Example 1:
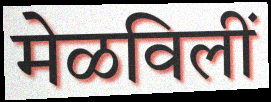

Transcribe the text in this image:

मेळविलीं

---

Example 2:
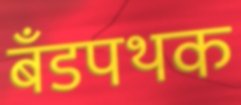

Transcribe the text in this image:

बँडपथक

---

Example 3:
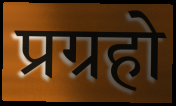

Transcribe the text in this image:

प्रग्रहो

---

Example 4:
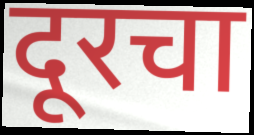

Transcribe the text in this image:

दूरचा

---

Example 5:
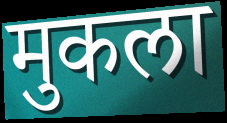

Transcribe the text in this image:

मुकला